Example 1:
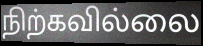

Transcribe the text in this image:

நிற்கவில்லை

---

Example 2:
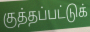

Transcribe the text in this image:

குத்தப்பட்டுக்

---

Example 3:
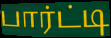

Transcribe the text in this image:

பார்ட்டி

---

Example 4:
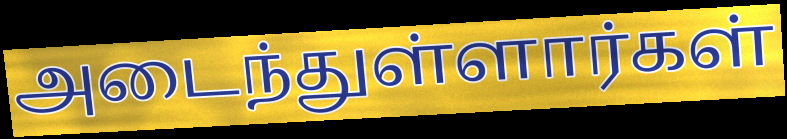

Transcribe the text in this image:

அடைந்துள்ளார்கள்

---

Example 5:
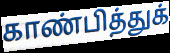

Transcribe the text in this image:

காண்பித்துக்